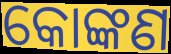
କୋଙ୍କଣ